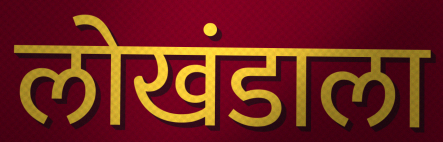
लोखंडाला